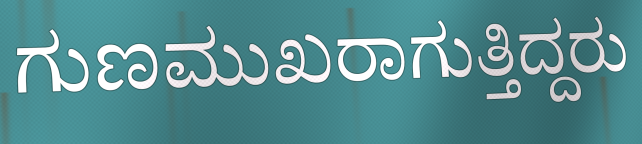
ಗುಣಮುಖರಾಗುತ್ತಿದ್ದರು